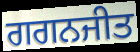
ਗਗਨਜੀਤ